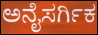
ಅನೈಸರ್ಗಿಕ